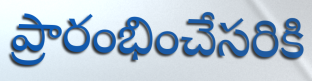
ప్రారంభించేసరికి